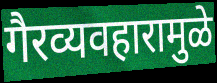
गैरव्यवहारामुळे